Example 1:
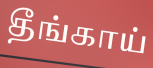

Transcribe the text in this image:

தீங்காய்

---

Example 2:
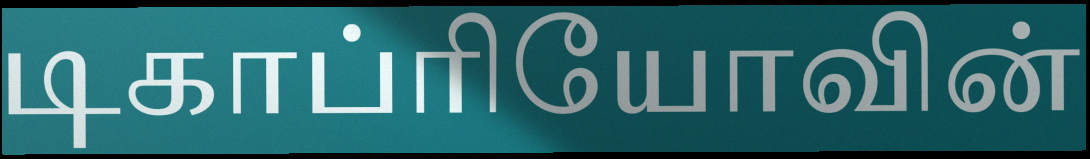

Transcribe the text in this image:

டிகாப்ரியோவின்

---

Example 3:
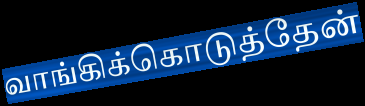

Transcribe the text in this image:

வாங்கிக்கொடுத்தேன்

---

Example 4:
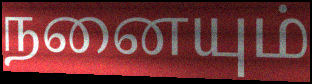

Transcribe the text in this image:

நனையும்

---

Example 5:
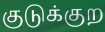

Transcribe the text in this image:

குடுக்குற